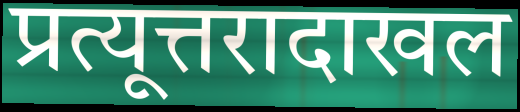
प्रत्यूत्तरादाखल